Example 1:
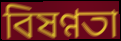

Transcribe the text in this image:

বিষণ্ণতা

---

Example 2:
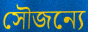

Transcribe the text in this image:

সৌজন্যে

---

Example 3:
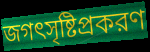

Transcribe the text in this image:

জগৎসৃষ্টিপ্রকরণ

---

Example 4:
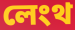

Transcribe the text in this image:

লেংথ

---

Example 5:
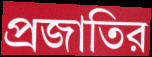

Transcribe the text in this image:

প্রজাতির